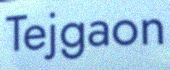
Tejgaon